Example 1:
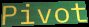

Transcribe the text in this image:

Pivot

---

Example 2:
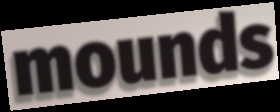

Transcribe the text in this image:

mounds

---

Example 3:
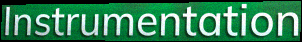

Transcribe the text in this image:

Instrumentation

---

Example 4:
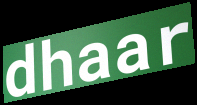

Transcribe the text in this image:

dhaar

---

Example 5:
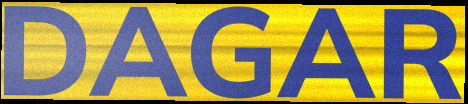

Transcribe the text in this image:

DAGAR